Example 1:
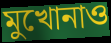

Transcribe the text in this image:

মুখোনাও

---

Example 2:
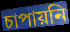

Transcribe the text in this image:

চাপায়নি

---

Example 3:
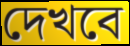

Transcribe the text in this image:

দেখবে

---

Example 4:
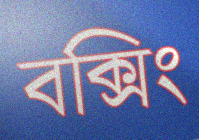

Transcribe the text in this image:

বক্সিং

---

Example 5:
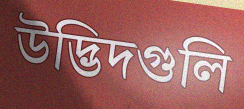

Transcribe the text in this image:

উদ্ভিদগুলি